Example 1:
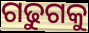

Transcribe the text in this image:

ଗଢୁଗକୁ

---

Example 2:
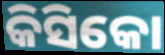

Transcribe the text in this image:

କିସିକୋ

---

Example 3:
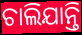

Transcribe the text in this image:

ଚାଲିଯାନ୍ତି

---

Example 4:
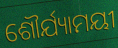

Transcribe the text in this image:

ଶୌର୍ଯ୍ୟାମୟୀ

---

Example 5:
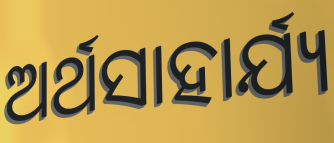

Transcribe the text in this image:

ଅର୍ଥସାହାର୍ଯ୍ୟ